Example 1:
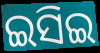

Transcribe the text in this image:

ଇସିଇ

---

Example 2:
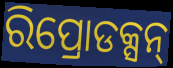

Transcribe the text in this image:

ରିପ୍ରୋଡକ୍ସନ୍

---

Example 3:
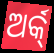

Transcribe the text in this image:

ଅର୍କ୍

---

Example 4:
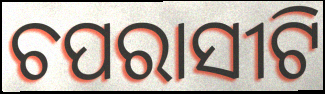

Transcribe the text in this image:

ଚପରାସୀଟି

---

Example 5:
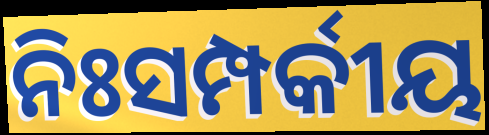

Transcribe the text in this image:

ନିଃସମ୍ପର୍କୀୟ